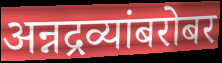
अन्नद्रव्यांबरोबर